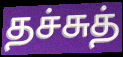
தச்சுத்